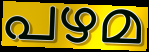
പഴമ